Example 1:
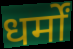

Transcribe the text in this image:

धर्मों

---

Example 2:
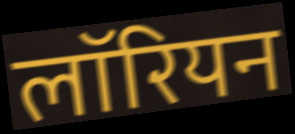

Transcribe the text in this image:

लॉरियन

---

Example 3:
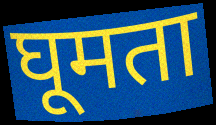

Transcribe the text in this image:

घूमता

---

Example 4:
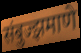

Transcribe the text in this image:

संबुज्झमाणे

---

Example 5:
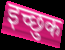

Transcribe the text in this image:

इच्छुक